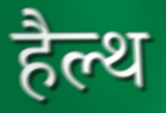
हैल्थ